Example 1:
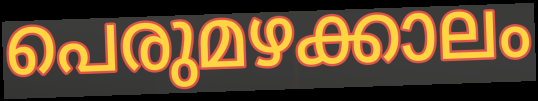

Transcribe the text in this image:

പെരുമഴക്കാലം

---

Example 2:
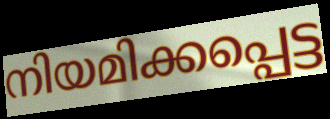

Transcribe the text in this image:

നിയമിക്കപ്പെട്ട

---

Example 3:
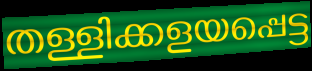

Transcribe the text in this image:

തള്ളിക്കളയപ്പെട്ട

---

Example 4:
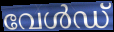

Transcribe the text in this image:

വേൾഡ്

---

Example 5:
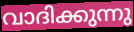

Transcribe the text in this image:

വാദിക്കുന്നു